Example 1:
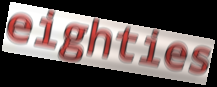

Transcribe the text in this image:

eighties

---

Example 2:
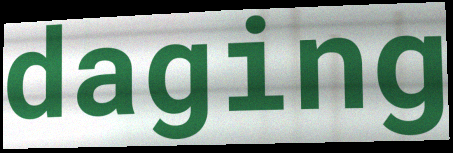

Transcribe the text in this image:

daging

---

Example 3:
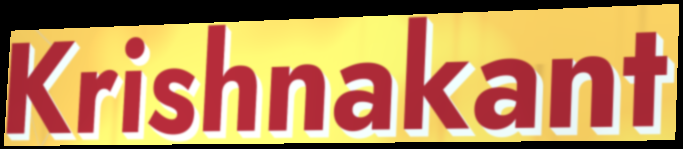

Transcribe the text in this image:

Krishnakant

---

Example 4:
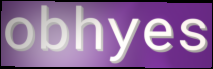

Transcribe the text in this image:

obhyes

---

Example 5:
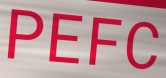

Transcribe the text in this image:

PEFC